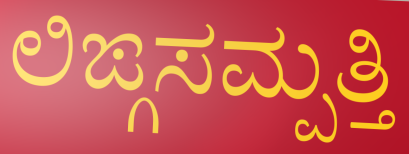
ಲಿಙ್ಗಸಮ್ಪತ್ತಿ